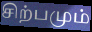
சிற்பமும்